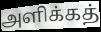
அளிக்கத்